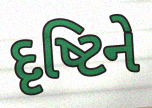
દૃષ્ટિને